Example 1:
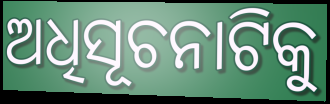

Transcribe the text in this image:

ଅଧିସୂଚନାଟିକୁ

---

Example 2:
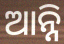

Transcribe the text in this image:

ଆନ୍ନି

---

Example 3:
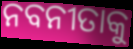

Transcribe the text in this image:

ନବନୀତାକୁ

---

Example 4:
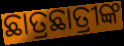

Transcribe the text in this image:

ଛାତ୍ରଛାତ୍ରୀଙ୍କ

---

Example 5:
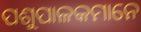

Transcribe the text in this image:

ପଶୁପାଳକମାନେ